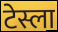
टेस्ला